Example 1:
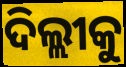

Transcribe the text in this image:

ଦିଲ୍ଲୀକୁ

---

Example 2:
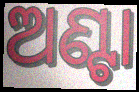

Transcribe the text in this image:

ଅଣ୍ଟା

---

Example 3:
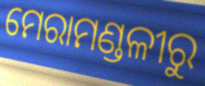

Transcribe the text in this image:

ମେରାମଣ୍ଡଳୀରୁ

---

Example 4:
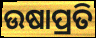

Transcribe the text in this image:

ଉଷାପ୍ରତି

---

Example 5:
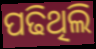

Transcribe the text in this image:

ପଢିଥିଲି